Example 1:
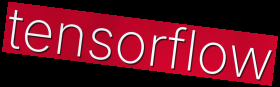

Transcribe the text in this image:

tensorflow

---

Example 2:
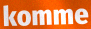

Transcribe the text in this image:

komme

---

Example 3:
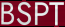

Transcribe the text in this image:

BSPT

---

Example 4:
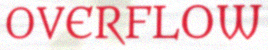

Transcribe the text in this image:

OVERFLOW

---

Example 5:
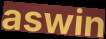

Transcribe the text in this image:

aswin